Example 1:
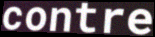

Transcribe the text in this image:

contre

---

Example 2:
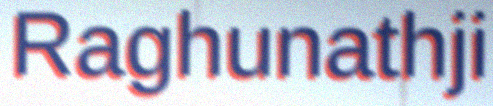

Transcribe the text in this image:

Raghunathji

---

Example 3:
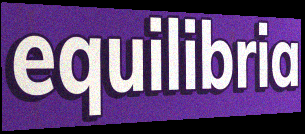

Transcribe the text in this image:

equilibria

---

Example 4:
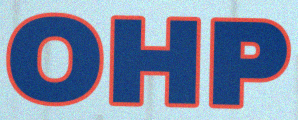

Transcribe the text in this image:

OHP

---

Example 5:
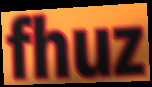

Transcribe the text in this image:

fhuz